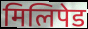
मिलिपेड